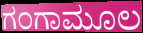
ಗಂಗಾಮೂಲ